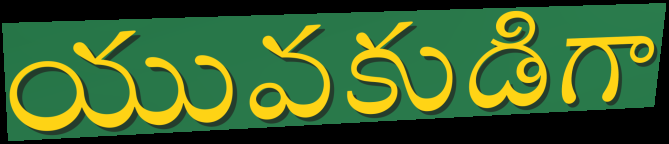
యువకుడిగా